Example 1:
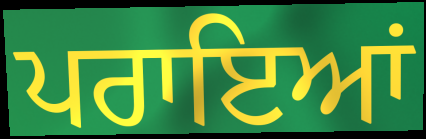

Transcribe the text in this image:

ਪਰਾਇਆਂ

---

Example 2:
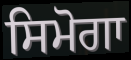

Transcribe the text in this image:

ਸਿਮੋਗਾ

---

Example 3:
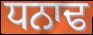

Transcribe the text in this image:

ਧਨਾਢ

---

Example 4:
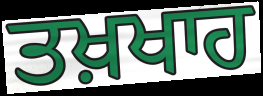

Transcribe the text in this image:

ਤਖ਼ਖਾਹ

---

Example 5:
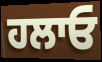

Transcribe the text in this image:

ਹਲਾਓ